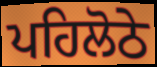
ਪਹਿਲੋਠੇ